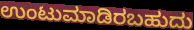
ಉಂಟುಮಾಡಿರಬಹುದು